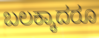
ಬಲಕ್ಕಾದರೂ